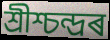
শ্ৰীশ্চন্দ্ৰৰ